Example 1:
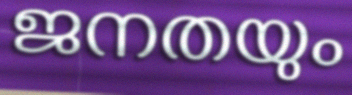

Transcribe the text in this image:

ജനതയും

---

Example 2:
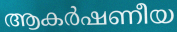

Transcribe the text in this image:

ആകർഷണീയ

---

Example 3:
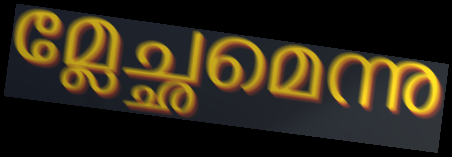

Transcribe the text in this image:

മ്ലേച്ഛമെന്നു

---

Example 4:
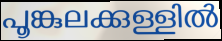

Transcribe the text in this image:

പൂങ്കുലക്കുള്ളിൽ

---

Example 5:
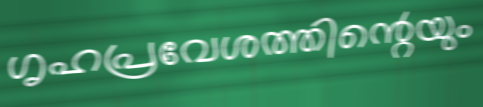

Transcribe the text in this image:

ഗൃഹപ്രവേശത്തിന്റെയും